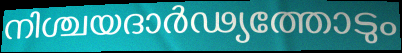
നിശ്ചയദാർഢ്യത്തോടും